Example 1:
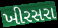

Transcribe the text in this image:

ખીરસરા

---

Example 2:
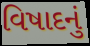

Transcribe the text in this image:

વિષાદનું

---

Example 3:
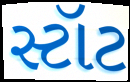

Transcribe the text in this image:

સ્ટૉટ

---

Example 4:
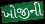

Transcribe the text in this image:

ખોજીની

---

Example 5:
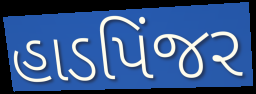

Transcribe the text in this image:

હાડપિંજર